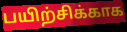
பயிற்சிக்காக